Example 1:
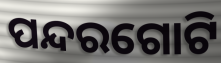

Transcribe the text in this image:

ପନ୍ଦରଗୋଟି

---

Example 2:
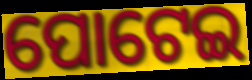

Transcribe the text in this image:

ପୋଟେଇ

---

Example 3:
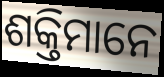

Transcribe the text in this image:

ଶକ୍ତିମାନେ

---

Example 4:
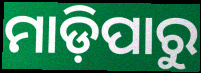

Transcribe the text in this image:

ମାଡ଼ିପାରୁ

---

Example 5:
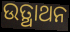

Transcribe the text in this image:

ଉତ୍ଥାଥନ